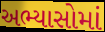
અભ્યાસોમાં